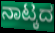
ನಾಟ್ಕದ